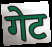
गेट